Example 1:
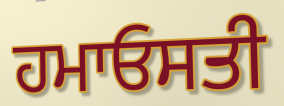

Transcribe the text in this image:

ਹਮਾਓਸਤੀ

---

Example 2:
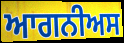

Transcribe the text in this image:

ਆਗਨੀਅਸ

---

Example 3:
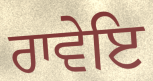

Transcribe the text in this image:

ਰਾਵੇਇ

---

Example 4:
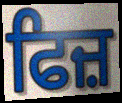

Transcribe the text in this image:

ਫਿਜ਼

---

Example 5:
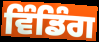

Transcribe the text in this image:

ਵਿੰਡਿੰਗ